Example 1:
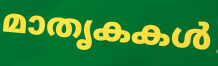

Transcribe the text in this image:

മാതൃകകൾ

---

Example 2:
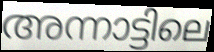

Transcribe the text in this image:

അന്നാട്ടിലെ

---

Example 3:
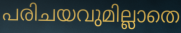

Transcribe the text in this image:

പരിചയവുമില്ലാതെ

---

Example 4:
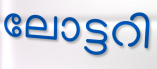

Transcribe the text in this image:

ലോട്ടറി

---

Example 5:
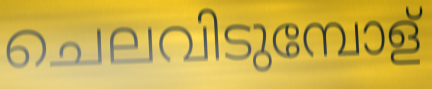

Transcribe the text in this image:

ചെലവിടുമ്പോള്